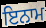
ਇਨਾਮ